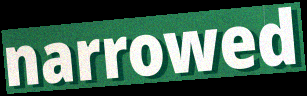
narrowed